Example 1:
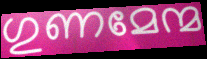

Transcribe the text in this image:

ഗുണമേന്മ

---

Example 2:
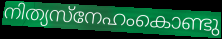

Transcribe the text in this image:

നിത്യസ്നേഹംകൊണ്ടു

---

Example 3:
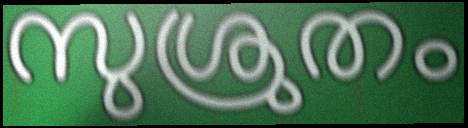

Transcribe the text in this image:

സുശ്രുതം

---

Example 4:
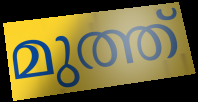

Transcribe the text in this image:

മുത്ത്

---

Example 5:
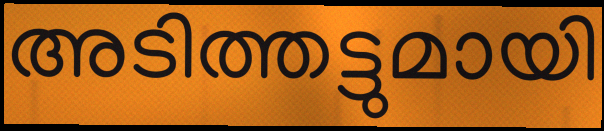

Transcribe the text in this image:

അടിത്തട്ടുമായി